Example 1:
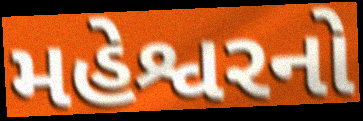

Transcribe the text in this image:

મહેશ્વરનો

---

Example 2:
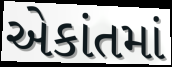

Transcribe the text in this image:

એકાંતમાં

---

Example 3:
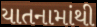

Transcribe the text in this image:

યાતનામાંથી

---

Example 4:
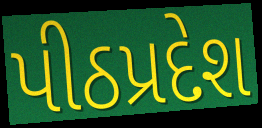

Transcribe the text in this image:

પીઠપ્રદેશ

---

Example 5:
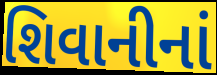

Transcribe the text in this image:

શિવાનીનાં